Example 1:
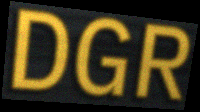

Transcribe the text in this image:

DGR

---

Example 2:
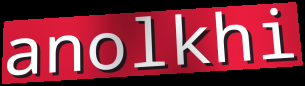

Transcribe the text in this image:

anolkhi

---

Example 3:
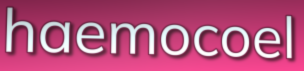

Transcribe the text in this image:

haemocoel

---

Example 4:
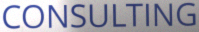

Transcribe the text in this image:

CONSULTING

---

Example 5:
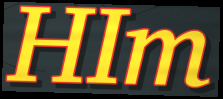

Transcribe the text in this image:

HIm